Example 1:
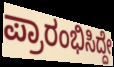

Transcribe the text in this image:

ಪ್ರಾರಂಭಿಸಿದ್ದೇ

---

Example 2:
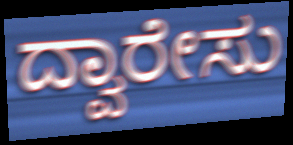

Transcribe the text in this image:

ದ್ವಾರೇಸು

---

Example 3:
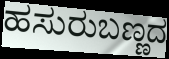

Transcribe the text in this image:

ಹಸುರುಬಣ್ಣದ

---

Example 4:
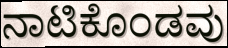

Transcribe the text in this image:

ನಾಟಿಕೊಂಡವು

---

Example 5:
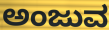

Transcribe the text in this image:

ಅಂಜುವ